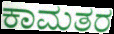
ಕಾಮತರ